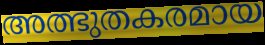
അത്ഭുതകരമായ